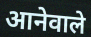
आनेवाले